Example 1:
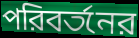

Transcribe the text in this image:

পরিবর্তনের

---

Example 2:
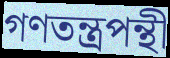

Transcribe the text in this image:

গণতন্ত্রপন্থী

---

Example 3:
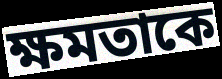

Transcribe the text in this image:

ক্ষমতাকে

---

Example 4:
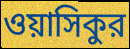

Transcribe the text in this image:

ওয়াসিকুর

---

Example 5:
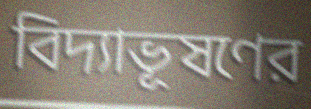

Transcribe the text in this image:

বিদ্যাভূষণের